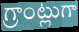
గ్రాంట్లుగా